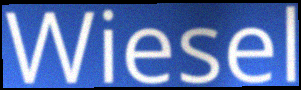
Wiesel